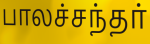
பாலச்சந்தர்